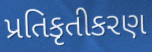
પ્રતિકૃતીકરણ